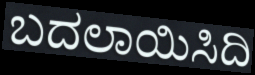
ಬದಲಾಯಿಸಿದಿ